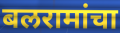
बलरामांचा